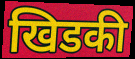
खिडकी